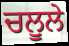
ਚਲੂਲੇ